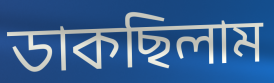
ডাকছিলাম